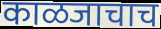
काळजाचाच